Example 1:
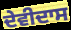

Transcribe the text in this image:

ਦੇਵੀਦਾਸ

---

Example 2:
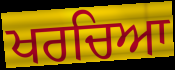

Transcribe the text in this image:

ਖਰਚਿਆ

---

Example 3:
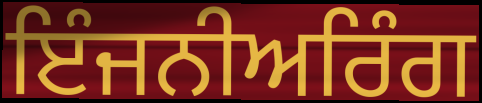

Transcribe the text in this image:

ਇੰਜਨੀਅਰਿੰਗ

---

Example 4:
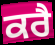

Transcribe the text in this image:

ਕਰੈ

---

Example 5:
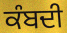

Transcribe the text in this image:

ਕੰਬਦੀ